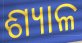
ଶ୍ୟାଳ